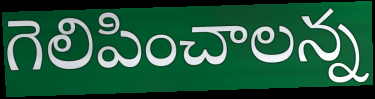
గెలిపించాలన్న